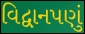
વિદ્વાનપણું